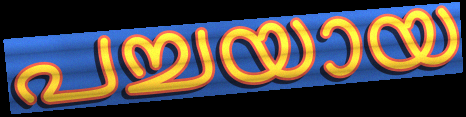
പച്ചയായ